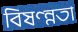
বিষণ্ন্নতা